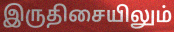
இருதிசையிலும்